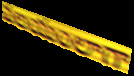
వలయంలాగా